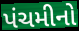
પંચમીનો